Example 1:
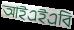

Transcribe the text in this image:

আইএইএবি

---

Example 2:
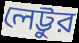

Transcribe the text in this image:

লেট্টুর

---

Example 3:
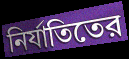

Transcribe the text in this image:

নির্যাতিতের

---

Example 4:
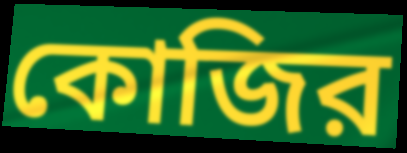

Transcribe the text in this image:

কোজির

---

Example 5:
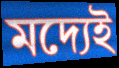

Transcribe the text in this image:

মদ্যেই